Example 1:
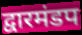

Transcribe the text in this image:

द्वारमंडप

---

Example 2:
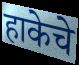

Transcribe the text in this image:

हाकेचे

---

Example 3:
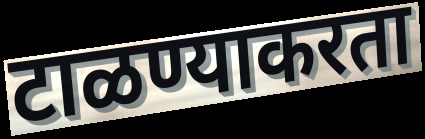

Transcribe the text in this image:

टाळण्याकरता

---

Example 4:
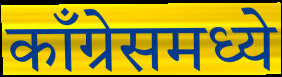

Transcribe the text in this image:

काँग्रेसमध्ये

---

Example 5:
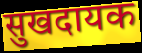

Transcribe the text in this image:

सुखदायक